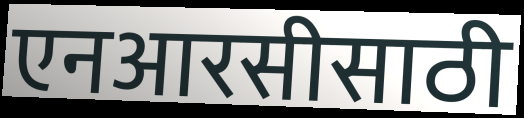
एनआरसीसाठी